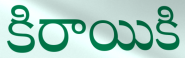
కిరాయికి